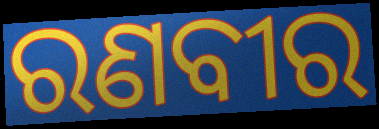
ରଣବୀର